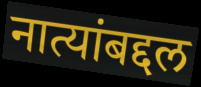
नात्यांबद्दल